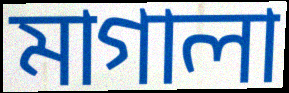
মাগালা